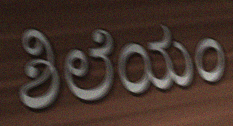
ಶಿಲೆಯಂ